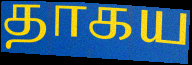
தாகய